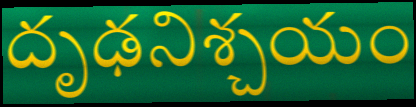
దృఢనిశ్చయం